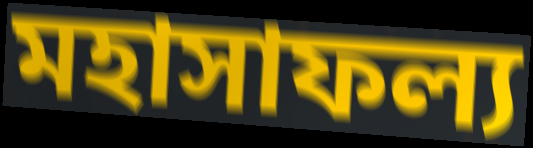
মহাসাফল্য